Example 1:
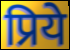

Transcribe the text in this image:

प्रिये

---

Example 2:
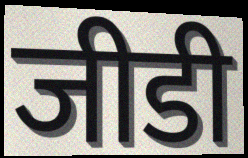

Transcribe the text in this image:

जीडी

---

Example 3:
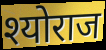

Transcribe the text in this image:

श्योराज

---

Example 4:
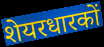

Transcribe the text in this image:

शेयरधारकों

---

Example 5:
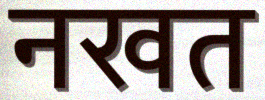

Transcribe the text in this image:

नखत